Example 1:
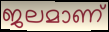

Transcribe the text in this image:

ജലമാണ്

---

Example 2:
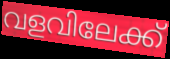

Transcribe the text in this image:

വളവിലേക്ക്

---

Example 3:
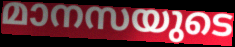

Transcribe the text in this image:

മാനസയുടെ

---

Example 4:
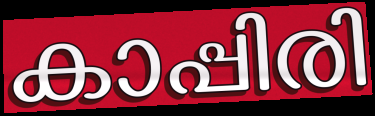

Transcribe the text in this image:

കാപ്പിരി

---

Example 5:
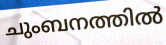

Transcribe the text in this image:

ചുംബനത്തിൽ